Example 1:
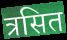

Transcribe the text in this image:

त्रसित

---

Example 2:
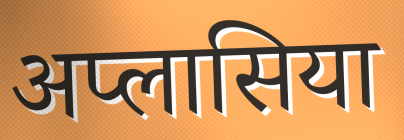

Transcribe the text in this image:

अप्लासिया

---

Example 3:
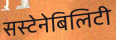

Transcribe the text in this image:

सस्टेनेबिलिटी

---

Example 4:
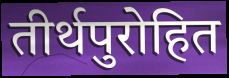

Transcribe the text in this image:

तीर्थपुरोहित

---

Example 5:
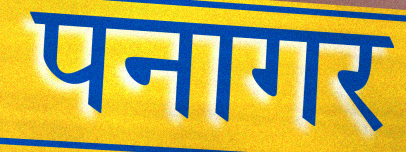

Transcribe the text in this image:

पनागर